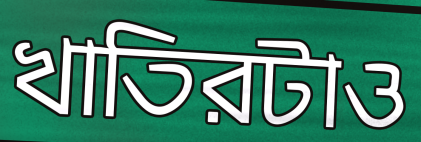
খাতিরটাও